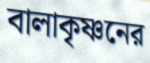
বালাকৃষ্ণনের